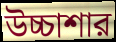
উচ্চাশার